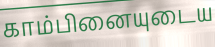
காம்பினையுடைய